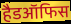
हैडऑफिस